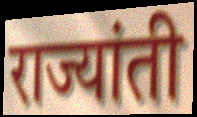
राज्यांती